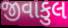
જીવાકુલ